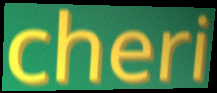
cheri